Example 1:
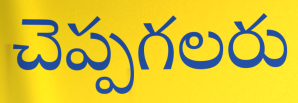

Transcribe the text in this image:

చెప్పగలరు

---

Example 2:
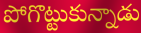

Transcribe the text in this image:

పోగొట్టుకున్నాడు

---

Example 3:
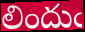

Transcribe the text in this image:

లిందుఁ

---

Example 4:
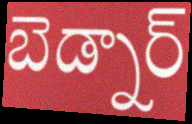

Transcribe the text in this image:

బెడ్నార్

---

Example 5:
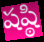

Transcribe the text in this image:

షష్ఠి